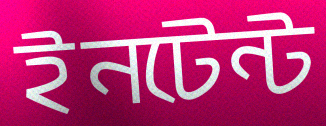
ইনটেন্ট